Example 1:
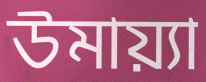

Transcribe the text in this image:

উমায়্যা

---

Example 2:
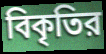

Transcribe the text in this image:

বিকৃতির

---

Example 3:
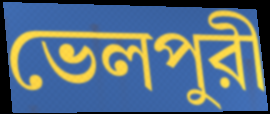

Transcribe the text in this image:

ভেলপুরী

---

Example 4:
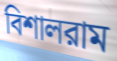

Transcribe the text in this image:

বিশালরাম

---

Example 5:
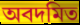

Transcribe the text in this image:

অবদমিত